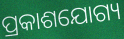
ପ୍ରକାଶଯୋଗ୍ୟ